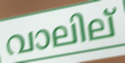
വാലില്